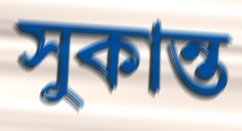
সুকান্ত